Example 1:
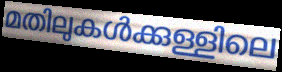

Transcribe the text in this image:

മതിലുകൾക്കുള്ളിലെ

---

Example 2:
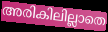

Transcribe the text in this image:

അരികിലില്ലാതെ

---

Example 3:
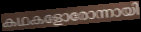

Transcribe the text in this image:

കഥകളോരോന്നായി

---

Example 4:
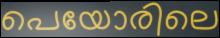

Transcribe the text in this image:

പെയോരിലെ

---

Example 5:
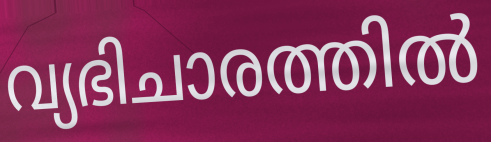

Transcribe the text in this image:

വ്യഭിചാരത്തിൽ